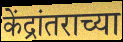
केंद्रांतराच्या